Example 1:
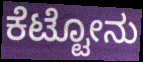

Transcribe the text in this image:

ಕೆಟ್ಟೋನು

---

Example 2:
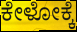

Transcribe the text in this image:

ಕೇಳೋಕ್ಕೆ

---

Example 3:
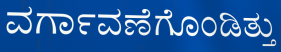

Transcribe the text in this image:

ವರ್ಗಾವಣೆಗೊಂಡಿತ್ತು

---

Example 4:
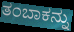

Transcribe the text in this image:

ತಂಬಾಕನ್ನು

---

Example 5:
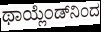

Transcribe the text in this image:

ಥಾಯ್ಲೆಂಡ್‌ನಿಂದ